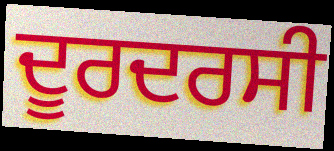
ਦੂਰਦਰਸੀ